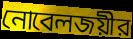
নোবেলজয়ীর